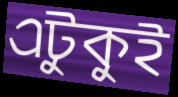
এটুকুই